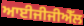
ਆਈਜੀਜੀਐੱਲ